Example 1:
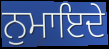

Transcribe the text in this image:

ਨੁਮਾਇਦੇ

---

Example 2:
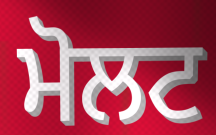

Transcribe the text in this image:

ਮੋਲਟ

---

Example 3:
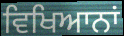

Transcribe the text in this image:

ਵਿਖਿਆਨਾਂ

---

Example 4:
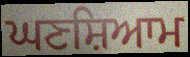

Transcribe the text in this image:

ਘਣਸ਼ਿਆਮ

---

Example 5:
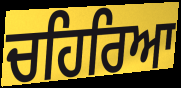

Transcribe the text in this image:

ਚਹਿਰਿਆ